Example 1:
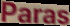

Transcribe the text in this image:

Paras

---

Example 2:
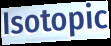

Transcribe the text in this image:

Isotopic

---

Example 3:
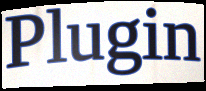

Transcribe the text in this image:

Plugin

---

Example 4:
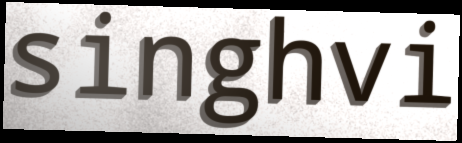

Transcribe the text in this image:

singhvi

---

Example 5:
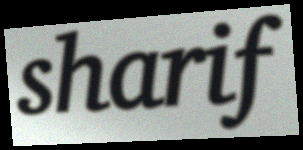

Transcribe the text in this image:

sharif